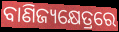
ବାଣିଜ୍ୟକ୍ଷେତ୍ରରେ